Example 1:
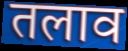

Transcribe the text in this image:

तलाव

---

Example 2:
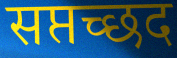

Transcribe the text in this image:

सप्तच्छद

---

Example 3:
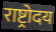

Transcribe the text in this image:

राष्ट्रोदय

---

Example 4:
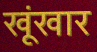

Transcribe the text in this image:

खूंखार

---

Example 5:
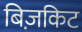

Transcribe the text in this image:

बिज़किट